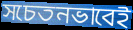
সচেতনভাবেই